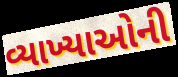
વ્યાખ્યાઓની